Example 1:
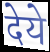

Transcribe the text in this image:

देये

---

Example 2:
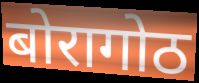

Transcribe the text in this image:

बोरागोठ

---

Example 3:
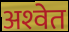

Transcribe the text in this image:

अश्‍वेत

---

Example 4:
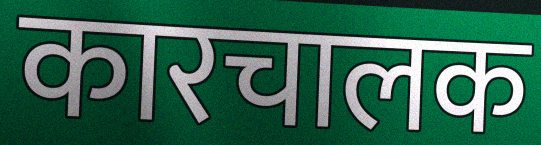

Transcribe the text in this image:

कारचालक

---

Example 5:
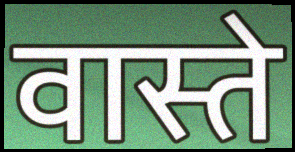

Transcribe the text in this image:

वास्ते